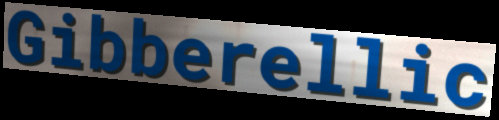
Gibberellic